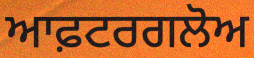
ਆਫ਼ਟਰਗਲੋਅ